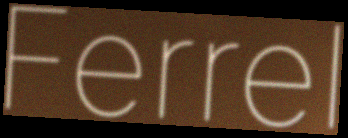
Ferrel